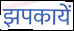
झपकायें